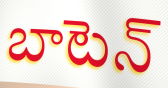
బాటెన్